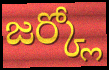
జర్క్లో